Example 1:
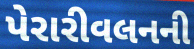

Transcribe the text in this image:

પેરારીવલનની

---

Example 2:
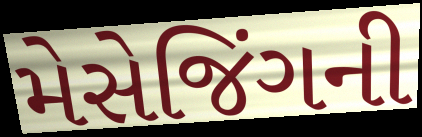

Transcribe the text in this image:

મેસેજિંગની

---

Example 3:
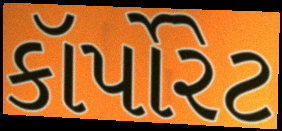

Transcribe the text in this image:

કૉર્પોરેટ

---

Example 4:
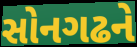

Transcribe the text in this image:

સોનગઢને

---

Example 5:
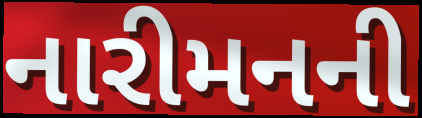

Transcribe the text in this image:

નારીમનની